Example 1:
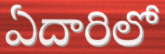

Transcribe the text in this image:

ఏదారిలో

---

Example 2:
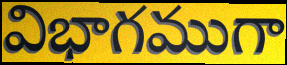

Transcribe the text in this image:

విభాగముగా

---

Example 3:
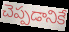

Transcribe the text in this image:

చెప్పడానికే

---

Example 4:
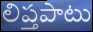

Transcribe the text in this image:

లిప్తపాటు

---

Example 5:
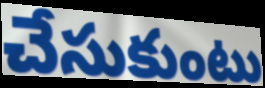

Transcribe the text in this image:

చేసుకుంటు